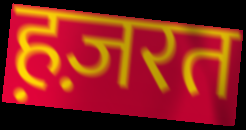
ह़ज़रत